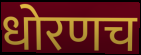
धोरणच